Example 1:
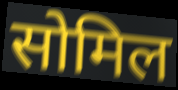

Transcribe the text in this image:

सोमिल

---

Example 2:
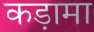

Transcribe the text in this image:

कड़ामा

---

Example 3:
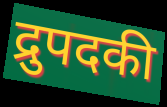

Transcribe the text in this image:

द्रुपदकी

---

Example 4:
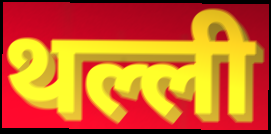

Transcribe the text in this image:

थल्ली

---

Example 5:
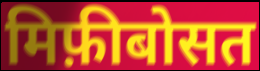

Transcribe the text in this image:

मिफ़ीबोसत